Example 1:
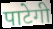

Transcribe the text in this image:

पाटेगी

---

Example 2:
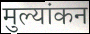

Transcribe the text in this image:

मुल्यांकन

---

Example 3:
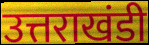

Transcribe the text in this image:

उत्तराखंडी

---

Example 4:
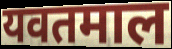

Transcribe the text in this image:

यवतमाल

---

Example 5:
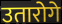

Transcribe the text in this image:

उतारोगे